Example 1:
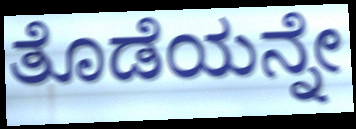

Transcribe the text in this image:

ತೊಡೆಯನ್ನೇ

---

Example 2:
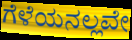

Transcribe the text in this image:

ಗೆಳೆಯನಲ್ಲವೇ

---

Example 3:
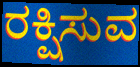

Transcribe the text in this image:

ರಕ್ಷಿಸುವ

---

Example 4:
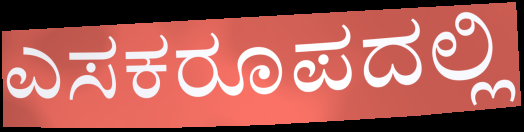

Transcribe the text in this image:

ಎಸಕರೂಪದಲ್ಲಿ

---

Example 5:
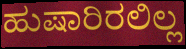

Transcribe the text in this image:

ಹುಷಾರಿರಲಿಲ್ಲ